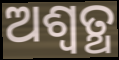
ଅଶ୍ବତ୍ଥ